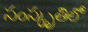
సంస్కృతిలో